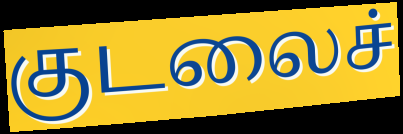
குடலைச்